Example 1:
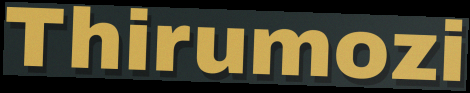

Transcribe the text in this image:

Thirumozi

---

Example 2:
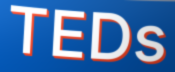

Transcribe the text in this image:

TEDs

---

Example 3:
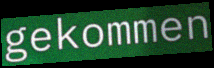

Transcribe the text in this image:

gekommen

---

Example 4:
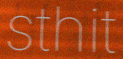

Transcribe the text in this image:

sthit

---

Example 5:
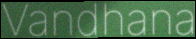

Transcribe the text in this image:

Vandhana